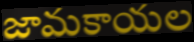
జామకాయల